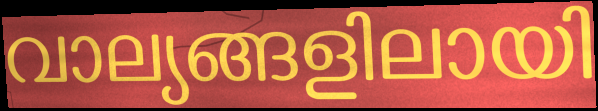
വാല്യങ്ങളിലായി